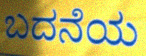
ಬದನೆಯ